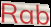
Rab